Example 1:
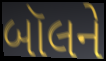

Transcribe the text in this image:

બૉલને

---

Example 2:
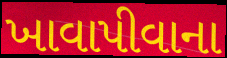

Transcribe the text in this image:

ખાવાપીવાના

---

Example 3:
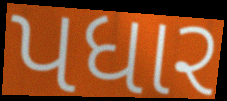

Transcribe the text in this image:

પધાર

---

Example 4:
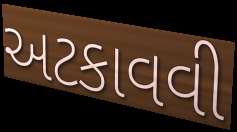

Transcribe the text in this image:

અટકાવવી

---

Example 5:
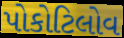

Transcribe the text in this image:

પોકોટિલોવ